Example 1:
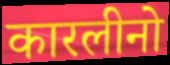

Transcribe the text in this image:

कारलीनो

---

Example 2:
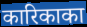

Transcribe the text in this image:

कारिकाका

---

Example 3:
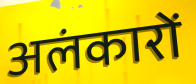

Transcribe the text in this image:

अलंकारों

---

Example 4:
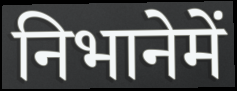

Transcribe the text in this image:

निभानेमें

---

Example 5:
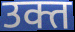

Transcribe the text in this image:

उक्‍त